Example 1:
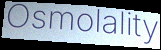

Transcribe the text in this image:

Osmolality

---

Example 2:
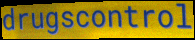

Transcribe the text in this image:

drugscontrol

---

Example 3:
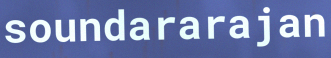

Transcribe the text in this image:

soundararajan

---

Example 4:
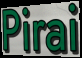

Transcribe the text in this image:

Pirai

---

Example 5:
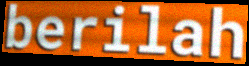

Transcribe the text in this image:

berilah